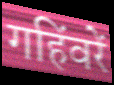
गहिंवरें